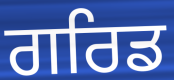
ਗਰਿਡ